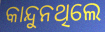
କାନ୍ଦୁନଥିଲେ